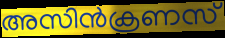
അസിൻക്രണസ്